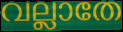
വല്ലാതേ